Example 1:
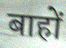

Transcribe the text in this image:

बाहों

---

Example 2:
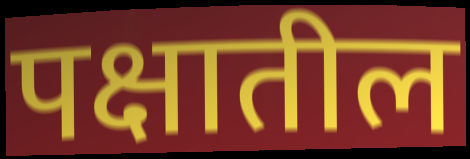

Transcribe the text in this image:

पक्षातील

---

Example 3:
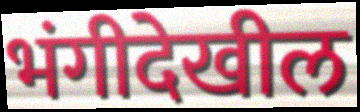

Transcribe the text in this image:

भंगीदेखील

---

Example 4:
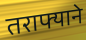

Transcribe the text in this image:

तराफ्याने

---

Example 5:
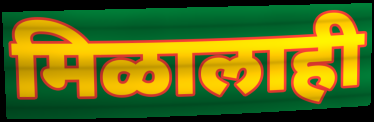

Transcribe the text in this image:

मिळालाही